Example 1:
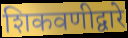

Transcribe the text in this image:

शिकवणीद्वारे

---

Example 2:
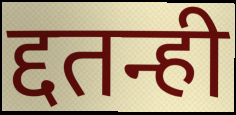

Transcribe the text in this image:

द्दतन्ही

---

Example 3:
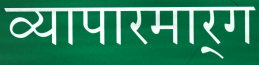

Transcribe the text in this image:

व्यापारमार्ग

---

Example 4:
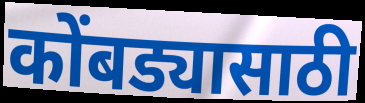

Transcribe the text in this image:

कोंबड्यासाठी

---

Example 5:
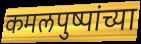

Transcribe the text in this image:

कमलपुष्पांच्या